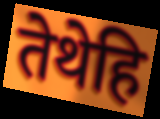
तेथेहि